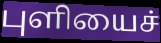
புளியைச்